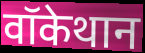
वॉकेथान